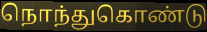
நொந்துகொண்டு